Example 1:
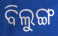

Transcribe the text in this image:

ବିଲୁଙ୍ଗ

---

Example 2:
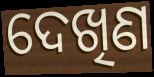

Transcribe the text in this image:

ଦେଖିଣ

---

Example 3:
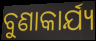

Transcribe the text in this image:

ବୁଣାକାର୍ଯ୍ୟ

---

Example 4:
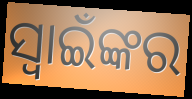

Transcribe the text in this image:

ସ୍ୱାଇଁଙ୍କର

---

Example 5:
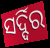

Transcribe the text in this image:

ସର୍ଦ୍ଦିର